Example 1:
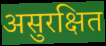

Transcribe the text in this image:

असुरक्षित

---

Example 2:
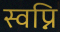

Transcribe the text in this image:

स्वप्नि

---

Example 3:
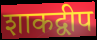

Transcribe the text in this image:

शाकद्वीप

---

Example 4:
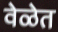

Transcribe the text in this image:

वेळेत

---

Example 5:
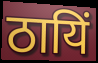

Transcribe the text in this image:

ठायिं